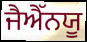
ਜੈਐੱਨਯੂ